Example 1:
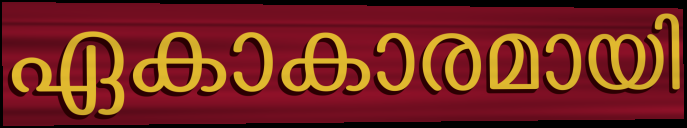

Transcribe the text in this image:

ഏകാകാരമായി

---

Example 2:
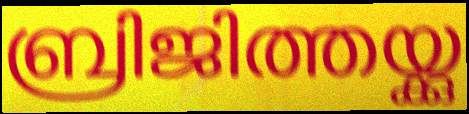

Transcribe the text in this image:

ബ്രിജിത്തയ്ക്കു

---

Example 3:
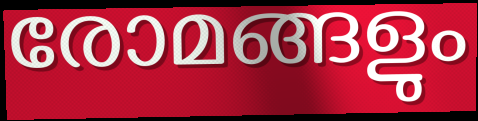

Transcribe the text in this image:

രോമങ്ങളും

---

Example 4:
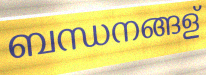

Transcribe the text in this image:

ബന്ധനങ്ങള്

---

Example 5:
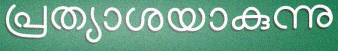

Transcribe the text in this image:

പ്രത്യാശയാകുന്നു